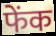
फेंक